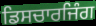
ਡਿਸਚਾਰਜਿੰਗ